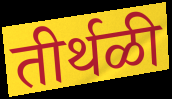
तीर्थळी